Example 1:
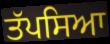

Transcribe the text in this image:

ਤੱਪਸਿਆ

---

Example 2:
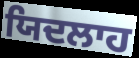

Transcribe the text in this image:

ਯਿਦਲਾਹ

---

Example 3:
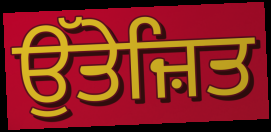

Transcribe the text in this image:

ਉੱਤੇਜ਼ਿਤ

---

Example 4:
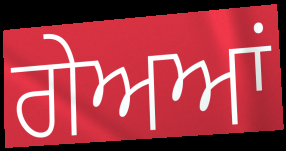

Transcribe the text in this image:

ਗੇਅਆਂ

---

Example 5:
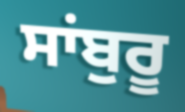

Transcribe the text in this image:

ਸਾਂਬੁਰੂ